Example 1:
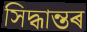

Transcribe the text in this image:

সিদ্ধান্তৰ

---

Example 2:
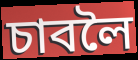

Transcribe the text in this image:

চাবলৈ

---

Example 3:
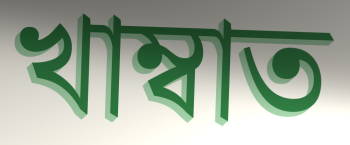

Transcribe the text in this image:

খাম্বাত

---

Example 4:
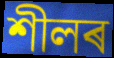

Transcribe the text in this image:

শীলৰ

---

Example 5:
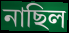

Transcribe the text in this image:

নাছিল